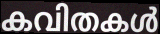
കവിതകൾ